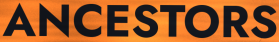
ANCESTORS